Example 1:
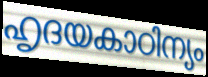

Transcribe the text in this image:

ഹൃദയകാഠിന്യം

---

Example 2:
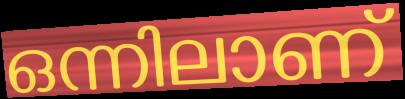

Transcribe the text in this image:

ഒന്നിലാണ്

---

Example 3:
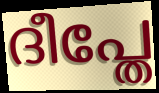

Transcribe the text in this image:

ദീപ്തേ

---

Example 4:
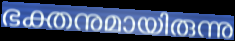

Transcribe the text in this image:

ഭക്തനുമായിരുന്നു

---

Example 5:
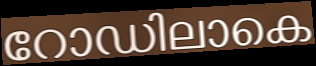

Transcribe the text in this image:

റോഡിലാകെ